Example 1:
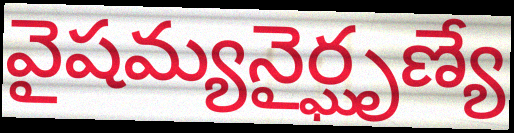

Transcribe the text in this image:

వైషమ్యనైర్ఘృణ్యే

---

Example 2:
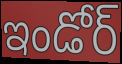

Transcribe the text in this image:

ఇండోర్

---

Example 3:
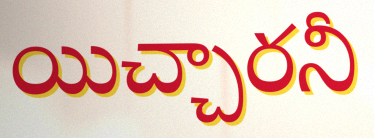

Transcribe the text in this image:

యిచ్చారనీ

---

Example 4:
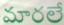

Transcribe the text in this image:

మారలే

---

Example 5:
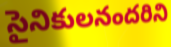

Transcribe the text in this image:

సైనికులనందరిని